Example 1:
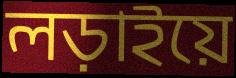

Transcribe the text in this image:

লড়াইয়ে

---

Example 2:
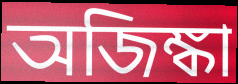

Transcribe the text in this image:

অজিঙ্কা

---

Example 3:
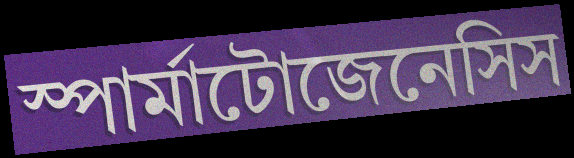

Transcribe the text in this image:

স্পার্মাটোজেনেসিস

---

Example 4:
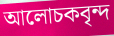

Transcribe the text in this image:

আলোচকবৃন্দ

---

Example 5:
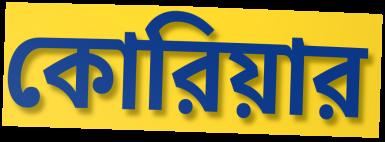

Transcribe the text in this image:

কোরিয়ার